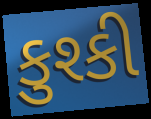
કુશ્કી